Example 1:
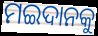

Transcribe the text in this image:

ମଇଦାନକୁ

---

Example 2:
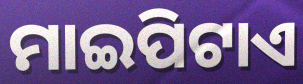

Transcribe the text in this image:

ମାଇପିଟାଏ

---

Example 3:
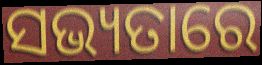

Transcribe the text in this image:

ସଭ୍ୟତାରେ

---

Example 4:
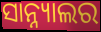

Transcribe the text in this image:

ସାନ୍ନ୍ୟାଲର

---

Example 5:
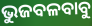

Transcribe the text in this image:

ଭୁଜବଳବାବୁ